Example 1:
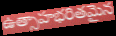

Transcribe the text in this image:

ఉత్సాహభరితమైన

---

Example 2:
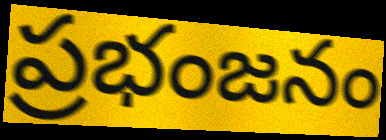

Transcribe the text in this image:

ప్రభంజనం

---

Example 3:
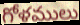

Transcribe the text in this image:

గోళములు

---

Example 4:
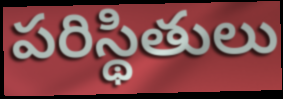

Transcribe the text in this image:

పరిస్థితులు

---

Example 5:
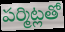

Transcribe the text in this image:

పర్మిట్లతో